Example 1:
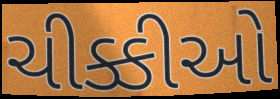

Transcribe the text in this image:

ચીક્કીઓ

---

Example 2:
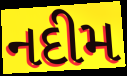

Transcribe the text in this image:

નદીમ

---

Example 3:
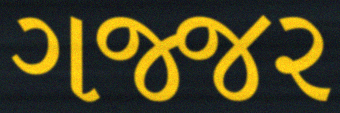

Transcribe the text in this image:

ગજ્જર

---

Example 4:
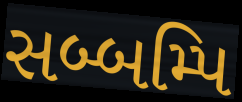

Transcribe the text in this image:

સબ્બમ્પિ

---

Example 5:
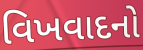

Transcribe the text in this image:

વિખવાદનો